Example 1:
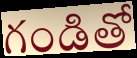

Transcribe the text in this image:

గండితో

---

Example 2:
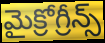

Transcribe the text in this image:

మైక్రోగ్రీన్స్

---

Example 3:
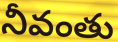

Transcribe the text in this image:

నీవంతు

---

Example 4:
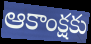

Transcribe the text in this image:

ఆకాంక్షకు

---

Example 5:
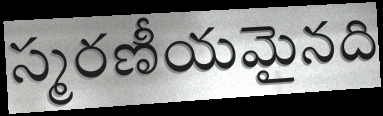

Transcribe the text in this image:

స్మరణీయమైనది